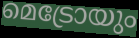
മെട്രോയും